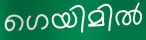
ഗെയിമിൽ